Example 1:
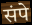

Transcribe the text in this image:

संपे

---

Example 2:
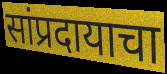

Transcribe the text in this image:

सांप्रदायाचा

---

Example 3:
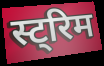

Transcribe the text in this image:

स्ट्रिम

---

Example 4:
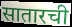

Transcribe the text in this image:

सातारची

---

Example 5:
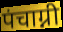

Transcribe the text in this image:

पंचाग्नी